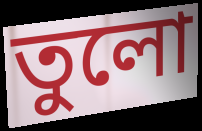
তুলো